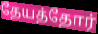
தேயத்தோர்